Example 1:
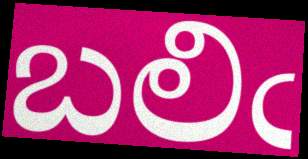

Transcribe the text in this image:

బలిఁ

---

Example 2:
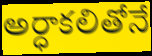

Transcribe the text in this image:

అర్ధాకలితోనే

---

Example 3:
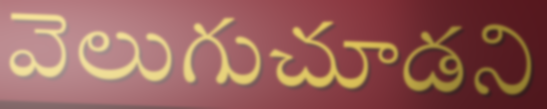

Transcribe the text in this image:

వెలుగుచూడని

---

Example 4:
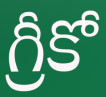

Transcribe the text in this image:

గ్రీకో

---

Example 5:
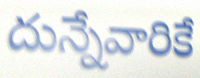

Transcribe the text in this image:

దున్నేవారికే